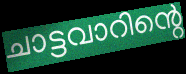
ചാട്ടവാറിന്റെ